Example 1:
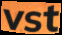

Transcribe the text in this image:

vst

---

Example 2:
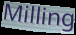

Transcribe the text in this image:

Milling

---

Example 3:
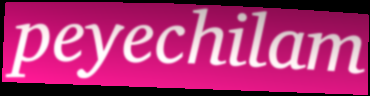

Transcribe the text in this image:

peyechilam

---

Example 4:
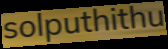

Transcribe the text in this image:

solputhithu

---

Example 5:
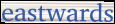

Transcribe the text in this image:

eastwards